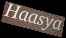
Haasya